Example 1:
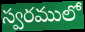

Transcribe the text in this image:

స్వరములో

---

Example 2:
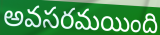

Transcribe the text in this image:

అవసరమయింది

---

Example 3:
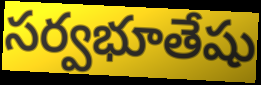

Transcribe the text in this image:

సర్వభూతేషు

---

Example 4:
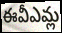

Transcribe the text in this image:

ఈవీఎమ్ల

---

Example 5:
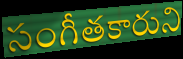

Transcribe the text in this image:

సంగీతకారుని